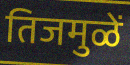
तिजमुळें